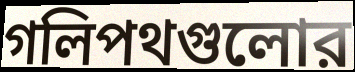
গলিপথগুলোর